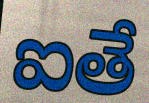
ఐతే